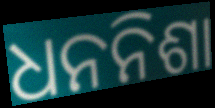
ଧନନିଶା